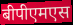
बीपीएमएस